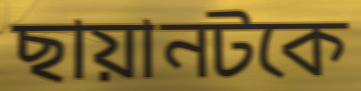
ছায়ানটকে